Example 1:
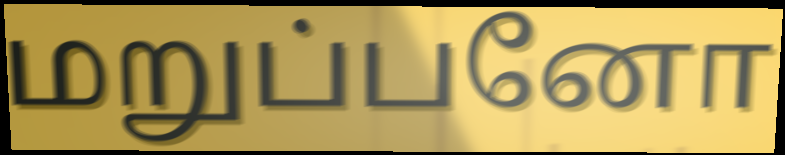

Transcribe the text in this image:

மறுப்பனோ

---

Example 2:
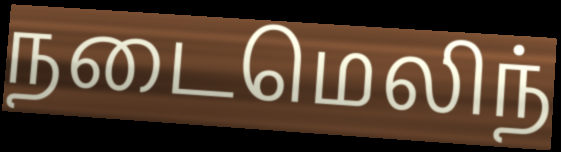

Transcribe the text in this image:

நடைமெலிந்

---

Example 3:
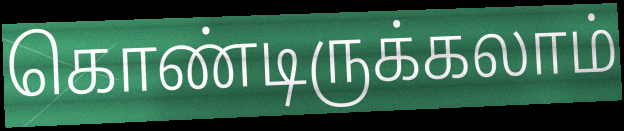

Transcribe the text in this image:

கொண்டிருக்கலாம்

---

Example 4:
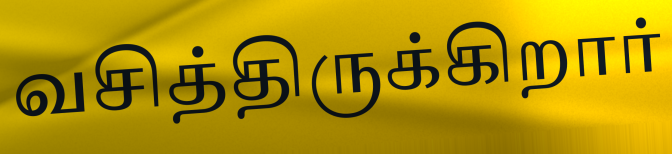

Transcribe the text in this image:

வசித்திருக்கிறார்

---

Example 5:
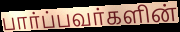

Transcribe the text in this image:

பார்ப்பவர்களின்